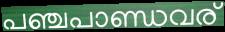
പഞ്ചപാണ്ഡവര്